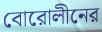
বোরোলীনের